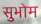
सुभोम